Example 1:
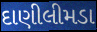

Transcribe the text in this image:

દાણીલીમડા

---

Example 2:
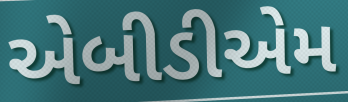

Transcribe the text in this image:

એબીડીએમ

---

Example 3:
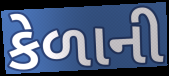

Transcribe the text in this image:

કેળાની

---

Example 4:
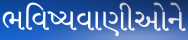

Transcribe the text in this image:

ભવિષ્યવાણીઓને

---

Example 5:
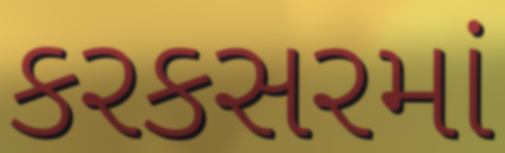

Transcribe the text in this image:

કરકસરમાં